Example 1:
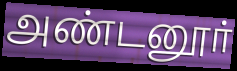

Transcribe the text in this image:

அண்டனூர்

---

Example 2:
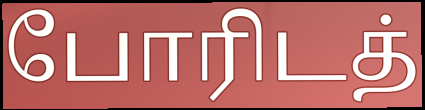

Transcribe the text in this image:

போரிடத்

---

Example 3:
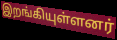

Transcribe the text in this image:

இறங்கியுள்ளனர்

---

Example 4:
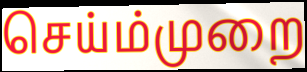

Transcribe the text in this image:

செய்ம்முறை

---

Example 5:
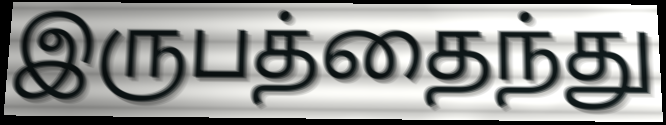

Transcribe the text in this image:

இருபத்தைந்து